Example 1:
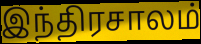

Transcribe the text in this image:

இந்திரசாலம்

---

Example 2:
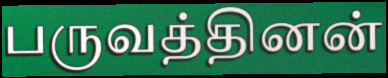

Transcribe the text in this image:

பருவத்தினன்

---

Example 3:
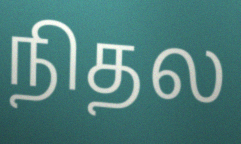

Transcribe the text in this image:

நிதல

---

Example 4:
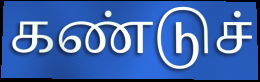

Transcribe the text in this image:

கண்டுச்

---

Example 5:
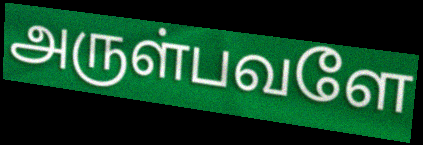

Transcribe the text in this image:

அருள்பவளே